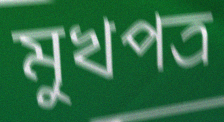
মুখপত্ৰ